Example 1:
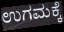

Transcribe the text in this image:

ಉಗಮಕ್ಕೆ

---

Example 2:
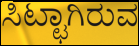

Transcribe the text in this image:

ಸಿಟ್ಟಾಗಿರುವ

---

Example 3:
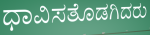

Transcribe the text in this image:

ಧಾವಿಸತೊಡಗಿದರು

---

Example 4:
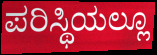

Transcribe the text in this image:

ಪರಿಸ್ಥಿಯಲ್ಲೂ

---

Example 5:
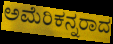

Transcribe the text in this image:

ಅಮೆರಿಕನ್ನರಾದ